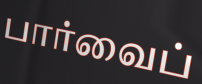
பார்வைப்